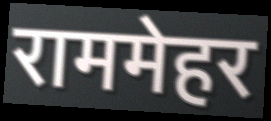
राममेहर